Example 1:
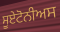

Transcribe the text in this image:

ਸੂਏਟੋਨੀਅਸ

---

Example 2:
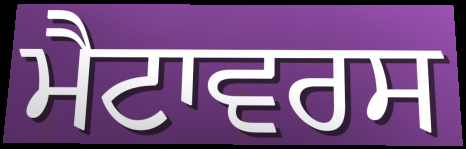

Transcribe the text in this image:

ਮੈਟਾਵਰਸ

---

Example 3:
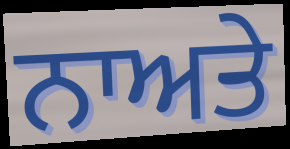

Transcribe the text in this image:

ਨਾਅਤੇ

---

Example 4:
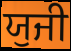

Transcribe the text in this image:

ਯੁਜੀ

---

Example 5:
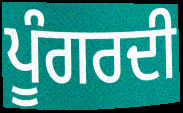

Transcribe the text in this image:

ਪੂੰਗਰਦੀ